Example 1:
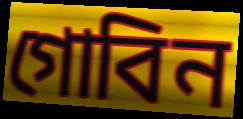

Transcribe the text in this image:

গোবিন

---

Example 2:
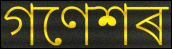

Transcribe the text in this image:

গণেশৰ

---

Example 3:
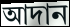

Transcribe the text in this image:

আদান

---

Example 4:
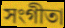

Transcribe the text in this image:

সংগীতা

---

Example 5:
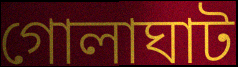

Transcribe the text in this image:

গোলাঘাট